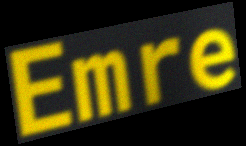
Emre